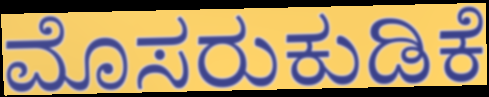
ಮೊಸರುಕುಡಿಕೆ